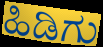
ಹಿಡಿಗು